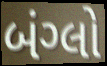
બંગ્લો